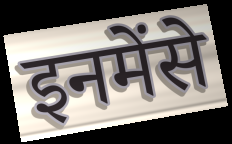
इनमेंसे